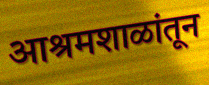
आश्रमशाळांतून